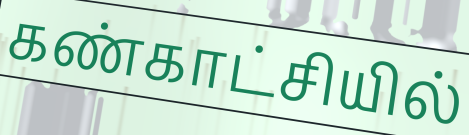
கண்காட்சியில்